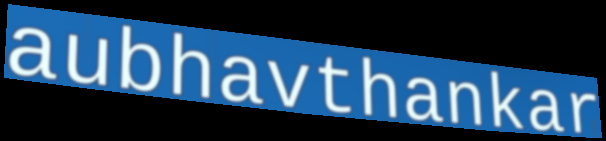
aubhavthankar